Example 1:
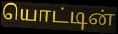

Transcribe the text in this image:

யொட்டின்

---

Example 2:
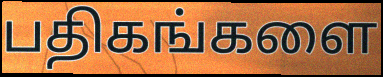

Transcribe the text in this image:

பதிகங்களை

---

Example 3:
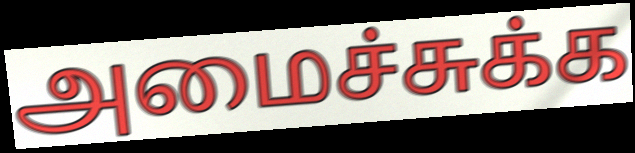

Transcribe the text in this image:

அமைச்சுக்க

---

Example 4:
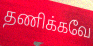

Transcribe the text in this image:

தணிக்கவே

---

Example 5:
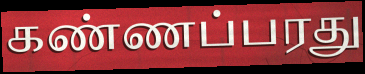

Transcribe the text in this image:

கண்ணப்பரது